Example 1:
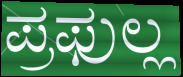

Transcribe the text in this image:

ಪ್ರಫುಲ್ಲ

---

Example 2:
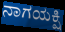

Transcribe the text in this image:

ನಾಗಯಕ್ಷಿ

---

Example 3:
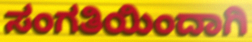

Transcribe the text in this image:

ಸಂಗತಿಯಿಂದಾಗಿ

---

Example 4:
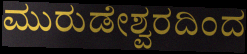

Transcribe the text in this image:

ಮುರುಡೇಶ್ವರದಿಂದ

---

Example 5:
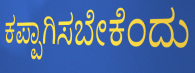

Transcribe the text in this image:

ಕಪ್ಪಾಗಿಸಬೇಕೆಂದು